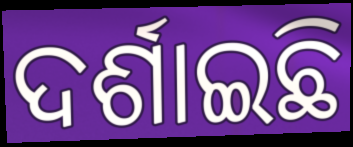
ଦର୍ଶାଇଛି